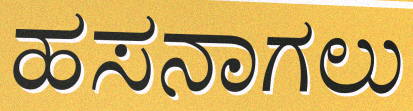
ಹಸನಾಗಲು